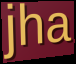
jha